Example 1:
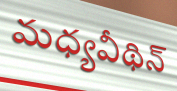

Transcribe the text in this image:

మధ్యవీథిన్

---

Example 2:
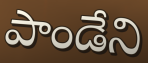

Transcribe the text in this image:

పాండేని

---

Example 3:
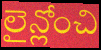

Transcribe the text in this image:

లైన్లోంచి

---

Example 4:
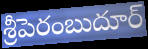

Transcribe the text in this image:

శ్రీపెరంబుదూర్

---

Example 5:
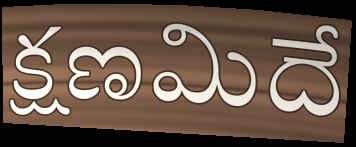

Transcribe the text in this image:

క్షణమిదే